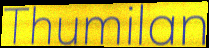
Thumilan